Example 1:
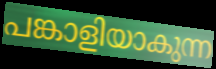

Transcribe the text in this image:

പങ്കാളിയാകുന്ന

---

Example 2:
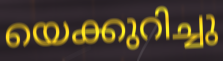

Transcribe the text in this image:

യെക്കുറിച്ചു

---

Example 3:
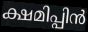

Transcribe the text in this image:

ക്ഷമിപ്പിൻ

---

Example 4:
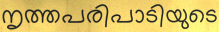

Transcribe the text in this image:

നൃത്തപരിപാടിയുടെ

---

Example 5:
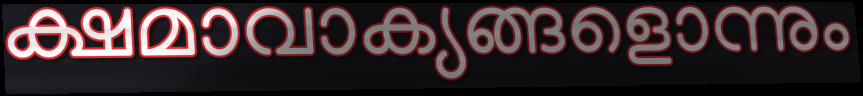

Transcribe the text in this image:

ക്ഷമാവാക്യങ്ങളൊന്നും